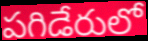
పగిడేరులో